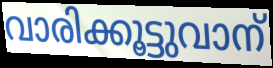
വാരിക്കൂട്ടുവാന്